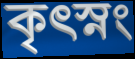
কৃৎস্নং